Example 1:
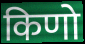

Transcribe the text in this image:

किणो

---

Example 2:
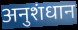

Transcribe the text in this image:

अनुशंधान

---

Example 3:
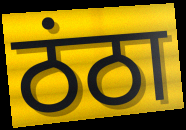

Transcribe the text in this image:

ठंठा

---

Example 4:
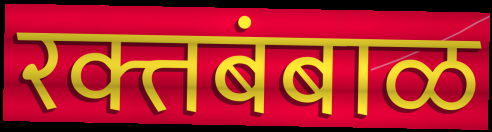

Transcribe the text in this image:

रक्तबंबाळ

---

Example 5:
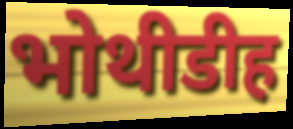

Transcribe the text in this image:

भोथीडीह